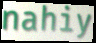
nahiy